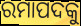
ରମାପଦକୁ